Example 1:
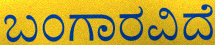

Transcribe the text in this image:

ಬಂಗಾರವಿದೆ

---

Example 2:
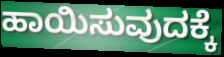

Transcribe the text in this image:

ಹಾಯಿಸುವುದಕ್ಕೆ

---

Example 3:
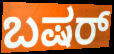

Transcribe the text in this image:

ಬಷರ್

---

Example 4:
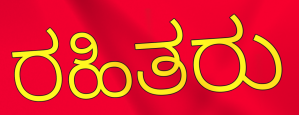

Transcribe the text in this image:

ರಹಿತರು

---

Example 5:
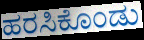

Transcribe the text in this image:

ಹರಸಿಕೊಂಡು